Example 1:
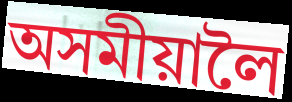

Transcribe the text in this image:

অসমীয়ালৈ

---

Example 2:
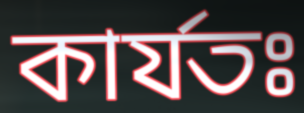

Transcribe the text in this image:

কাৰ্যতঃ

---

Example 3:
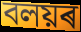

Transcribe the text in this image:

বলয়ৰ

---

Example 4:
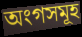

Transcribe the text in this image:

অংগসমূহ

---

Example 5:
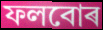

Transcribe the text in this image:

ফলবোৰ